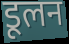
डूलन